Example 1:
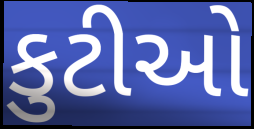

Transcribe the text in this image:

કુટીઓ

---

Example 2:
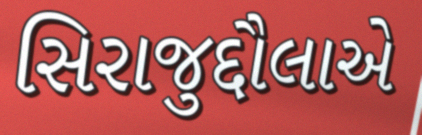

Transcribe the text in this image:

સિરાજુદ્દૌલાએ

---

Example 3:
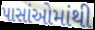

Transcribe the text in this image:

પાસાંઓમાંથી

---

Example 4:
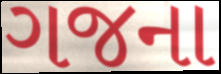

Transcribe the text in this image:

ગજના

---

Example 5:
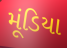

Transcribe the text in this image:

મૂંડિયા